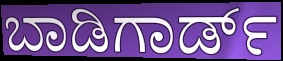
ಬಾಡಿಗಾರ್ಡ್